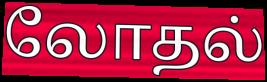
லோதல்